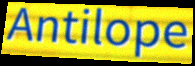
Antilope